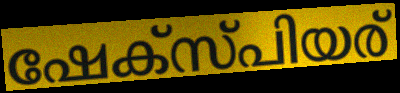
ഷേക്സ്പിയര്